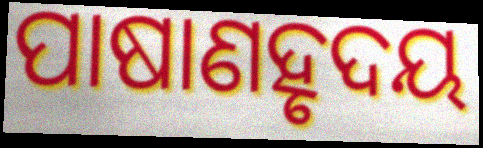
ପାଷାଣହୃଦୟ